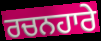
ਰਚਨਹਾਰੇ